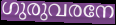
ഗുരുവരനേ